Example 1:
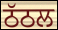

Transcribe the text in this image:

ਠੱਠਲ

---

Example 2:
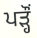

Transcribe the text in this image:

ਪੜ੍ਹੌਂ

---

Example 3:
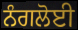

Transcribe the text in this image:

ਨੰਗਲੋਈ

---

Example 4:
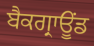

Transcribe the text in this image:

ਬੈਕਗ੍ਰਾਊਂਡ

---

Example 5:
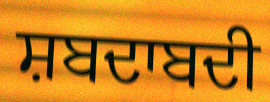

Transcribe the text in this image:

ਸ਼ਬਦਾਬਦੀ